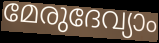
മേരുദേവ്യാം